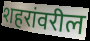
शहरांवरील